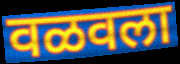
वळवला